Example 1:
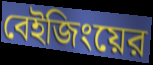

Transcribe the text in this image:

বেইজিংয়ের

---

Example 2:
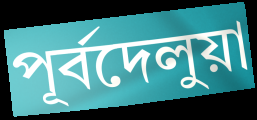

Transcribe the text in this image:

পূর্বদেলুয়া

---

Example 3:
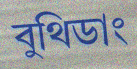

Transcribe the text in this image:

বুথিডাং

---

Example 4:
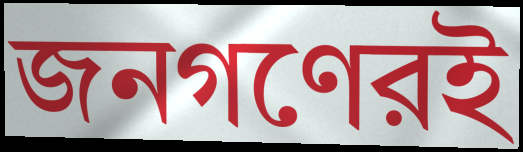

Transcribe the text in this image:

জনগণেরই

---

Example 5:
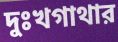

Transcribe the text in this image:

দুঃখগাথার